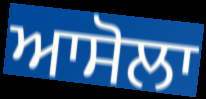
ਆਸੋਲਾ